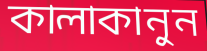
কালাকানুন